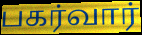
பகர்வார்